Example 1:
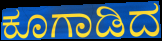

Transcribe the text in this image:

ಕೂಗಾಡಿದ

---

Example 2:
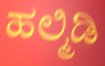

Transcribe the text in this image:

ಹಲ್ಮಿಡಿ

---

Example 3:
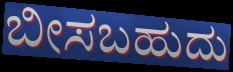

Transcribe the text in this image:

ಬೀಸಬಹುದು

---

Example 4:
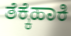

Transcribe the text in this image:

ತೆಕ್ಕೆಹಾಕಿ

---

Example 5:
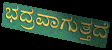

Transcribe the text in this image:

ಭದ್ರವಾಗುತ್ತದೆ